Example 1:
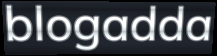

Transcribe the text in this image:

blogadda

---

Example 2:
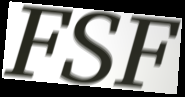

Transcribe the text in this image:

FSF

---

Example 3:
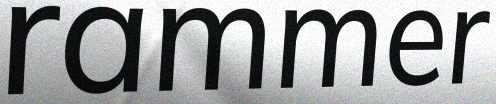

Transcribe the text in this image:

rammer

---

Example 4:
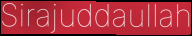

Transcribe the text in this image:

Sirajuddaullah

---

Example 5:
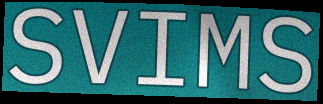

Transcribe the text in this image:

SVIMS